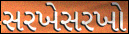
સરખેસરખો